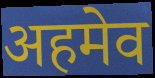
अहमेव